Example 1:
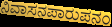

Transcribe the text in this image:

ನಿವಾಸನಪಾರುಪನಂ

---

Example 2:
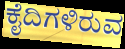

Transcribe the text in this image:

ಕೈದಿಗಳಿರುವ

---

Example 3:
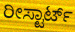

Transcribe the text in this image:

ರೀಸ್ಟಾರ್ಟ್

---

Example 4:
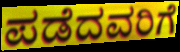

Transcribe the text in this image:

ಪಡೆದವರಿಗೆ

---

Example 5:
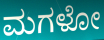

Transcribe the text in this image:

ಮಗಳೋ